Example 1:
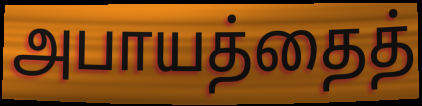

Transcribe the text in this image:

அபாயத்தைத்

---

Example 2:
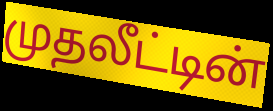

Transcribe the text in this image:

முதலீட்டின்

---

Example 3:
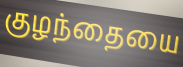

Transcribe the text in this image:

குழந்தையை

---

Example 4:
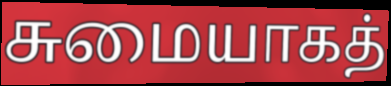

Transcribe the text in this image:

சுமையாகத்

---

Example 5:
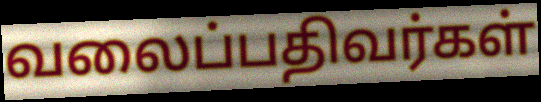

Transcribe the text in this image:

வலைப்பதிவர்கள்